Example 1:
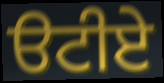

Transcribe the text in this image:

ੳਟੀਏ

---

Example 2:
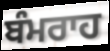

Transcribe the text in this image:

ਬੰਮਰਾਹ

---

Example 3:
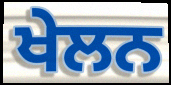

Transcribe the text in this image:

ਖੇਲਨ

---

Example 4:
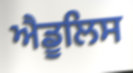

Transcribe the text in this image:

ਐਡੂਲਿਸ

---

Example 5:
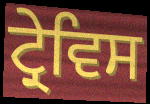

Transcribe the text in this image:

ਟ੍ਰੇਵਿਸ